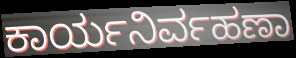
ಕಾರ್ಯನಿರ್ವಹಣಾ